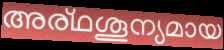
അര്ഥശൂന്യമായ